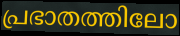
പ്രഭാതത്തിലോ